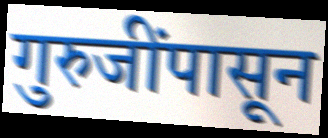
गुरुजींपासून